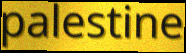
palestine